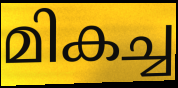
മികച്ച